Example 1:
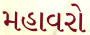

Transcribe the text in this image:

મહાવરો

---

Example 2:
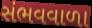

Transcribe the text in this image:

સંભવવાળા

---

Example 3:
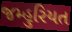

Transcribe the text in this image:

જમ્હુરિયત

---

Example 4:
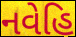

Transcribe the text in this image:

નવેહિ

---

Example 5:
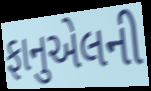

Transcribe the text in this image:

ફાનુએલની